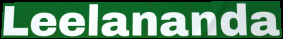
Leelananda